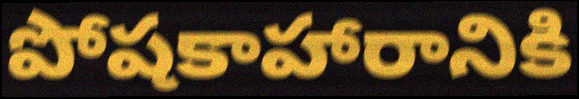
పోషకాహారానికి